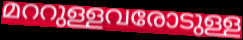
മററുള്ളവരോടുള്ള